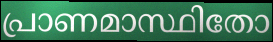
പ്രാണമാസ്ഥിതോ